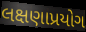
લક્ષણાપ્રયોગ